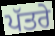
ਪੱਤਰੇ